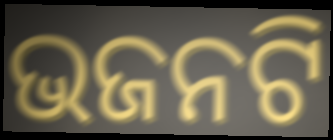
ଭଜନଟି